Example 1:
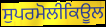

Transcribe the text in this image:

ਸੁਪਰਮੋਲੀਕਿਊਲ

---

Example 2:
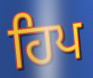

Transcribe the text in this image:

ਹਿਪ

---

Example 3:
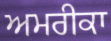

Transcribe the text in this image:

ਅਮਰੀਕਾ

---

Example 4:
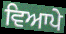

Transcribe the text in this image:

ਵਿਆਪੇ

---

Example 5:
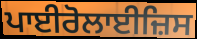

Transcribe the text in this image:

ਪਾਈਰੋਲਾਈਜ਼ਿਸ